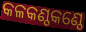
କଳକଣ୍ଠକଣ୍ଠେ